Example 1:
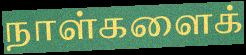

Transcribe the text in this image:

நாள்களைக்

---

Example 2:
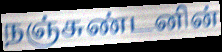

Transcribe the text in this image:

நஞ்சுண்டனின்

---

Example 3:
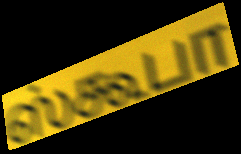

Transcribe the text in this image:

ஸ்கூபா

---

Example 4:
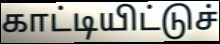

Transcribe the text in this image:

காட்டியிட்டுச்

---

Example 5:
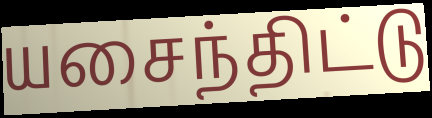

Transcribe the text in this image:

யசைந்திட்டு